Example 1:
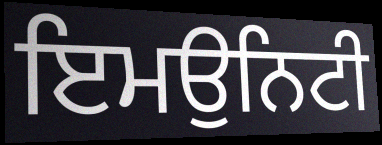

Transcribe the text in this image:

ਇਮਉਨਿਟੀ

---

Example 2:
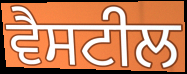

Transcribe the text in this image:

ਵੈਸਟੀਲ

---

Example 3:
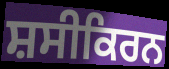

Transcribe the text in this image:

ਸ਼ਸੀਕਿਰਨ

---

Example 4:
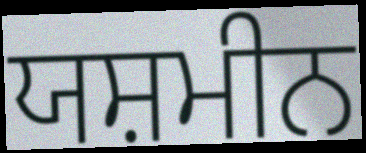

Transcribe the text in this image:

ਯਸ਼ਮੀਨ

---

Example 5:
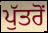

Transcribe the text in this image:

ਪੁੱਤਰੋਂ